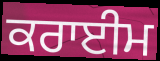
ਕਰਾਈਮ